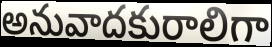
అనువాదకురాలిగా